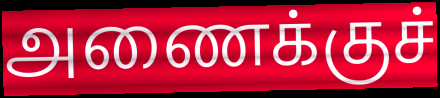
அணைக்குச்